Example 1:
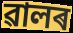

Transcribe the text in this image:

ৱালৰ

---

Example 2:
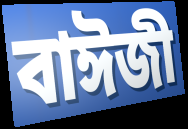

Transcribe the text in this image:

বাঈজী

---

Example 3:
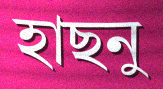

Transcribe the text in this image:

হাছনু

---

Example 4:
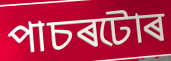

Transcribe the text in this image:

পাচৰটোৰ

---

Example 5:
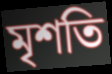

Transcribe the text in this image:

মৃশতি